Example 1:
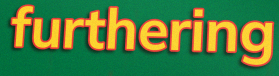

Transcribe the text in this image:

furthering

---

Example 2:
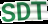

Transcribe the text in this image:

SDT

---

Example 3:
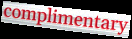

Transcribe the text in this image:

complimentary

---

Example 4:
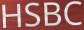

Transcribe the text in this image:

HSBC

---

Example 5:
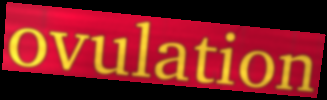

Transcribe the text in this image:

ovulation